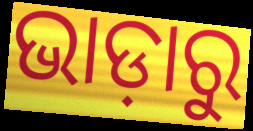
ଭାଡ଼ାରୁ